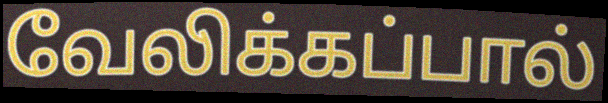
வேலிக்கப்பால்